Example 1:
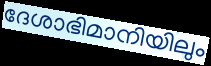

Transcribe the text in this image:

ദേശാഭിമാനിയിലും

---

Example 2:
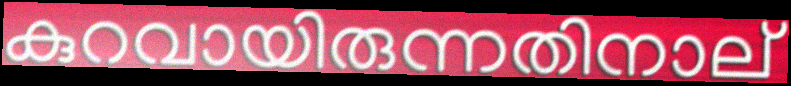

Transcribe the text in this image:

കുറവായിരുന്നതിനാല്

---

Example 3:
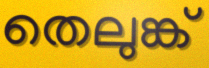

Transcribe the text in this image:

തെലുങ്ക്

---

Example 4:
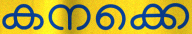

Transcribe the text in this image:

കനക്കെ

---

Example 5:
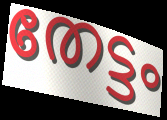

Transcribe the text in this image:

തേട്ടം